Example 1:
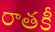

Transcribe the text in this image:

రాతకీ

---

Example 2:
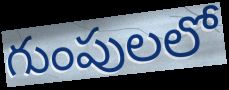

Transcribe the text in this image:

గుంపులలో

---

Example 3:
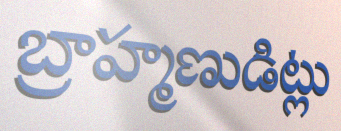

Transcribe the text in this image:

బ్రాహ్మణుడిట్లు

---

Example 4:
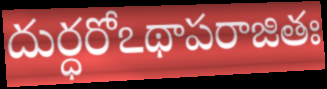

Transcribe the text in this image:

దుర్ధరోఽథాపరాజితః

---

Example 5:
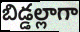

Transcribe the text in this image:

బిడ్డల్లాగా